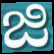
జి